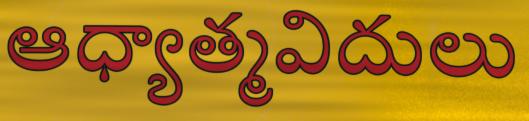
ఆధ్యాత్మవిదులు